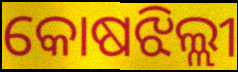
କୋଷଝିଲ୍ଲୀ